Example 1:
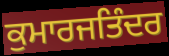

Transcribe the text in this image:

ਕੁਮਾਰਜਤਿੰਦਰ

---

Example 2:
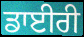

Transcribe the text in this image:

ਡਾਈਰੀ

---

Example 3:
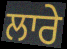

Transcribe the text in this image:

ਲਾਰੇ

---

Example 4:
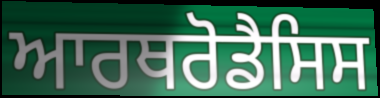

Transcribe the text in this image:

ਆਰਥਰੋਡੈਸਿਸ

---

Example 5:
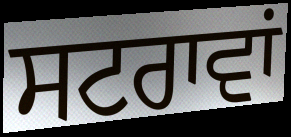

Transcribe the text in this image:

ਸਟਰਾਵਾਂ